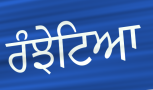
ਰੰਝੇਟਿਆ